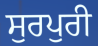
ਸੁਰਪੁਰੀ